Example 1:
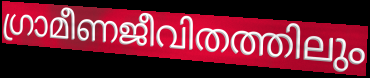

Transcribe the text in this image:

ഗ്രാമീണജീവിതത്തിലും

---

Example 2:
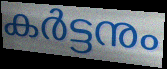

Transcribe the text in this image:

കർട്ടനും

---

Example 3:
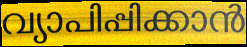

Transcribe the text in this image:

വ്യാപിപ്പിക്കാൻ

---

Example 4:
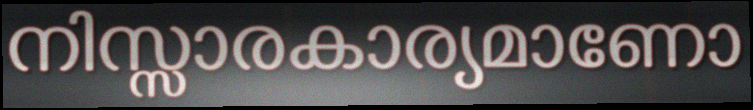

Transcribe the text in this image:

നിസ്സാരകാര്യമാണോ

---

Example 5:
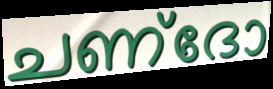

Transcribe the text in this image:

ചണ്ദോ